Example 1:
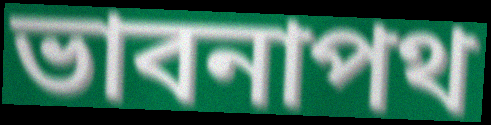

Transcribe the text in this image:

ভাবনাপথ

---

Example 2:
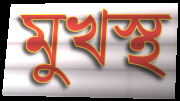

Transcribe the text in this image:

মুখস্থ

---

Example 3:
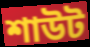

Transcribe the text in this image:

শাউট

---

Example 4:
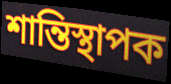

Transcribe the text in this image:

শান্তিস্থাপক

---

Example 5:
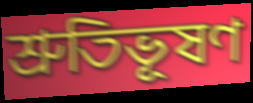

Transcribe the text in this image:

শ্রুতিভূষণ